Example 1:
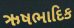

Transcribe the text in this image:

ઋષભાદિક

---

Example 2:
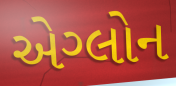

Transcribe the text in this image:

એગ્લોન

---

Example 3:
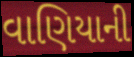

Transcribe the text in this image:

વાણિયાની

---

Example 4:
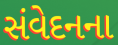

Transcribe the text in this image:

સંવેદનના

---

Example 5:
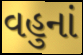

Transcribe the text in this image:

વહુનાં